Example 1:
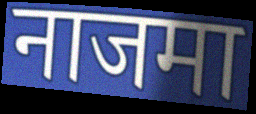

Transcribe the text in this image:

नाजमा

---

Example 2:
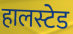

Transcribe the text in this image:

हालस्टेड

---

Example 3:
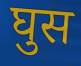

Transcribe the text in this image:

घुस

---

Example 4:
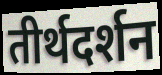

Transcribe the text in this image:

तीर्थदर्शन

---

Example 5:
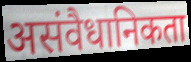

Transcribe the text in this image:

असंवैधानिकता